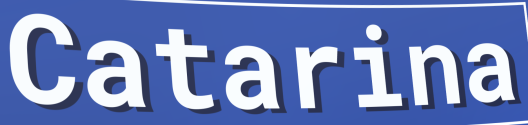
Catarina